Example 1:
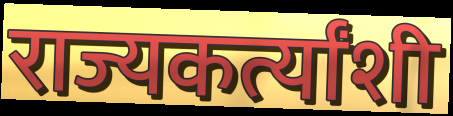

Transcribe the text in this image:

राज्यकर्त्यांशी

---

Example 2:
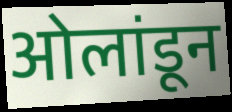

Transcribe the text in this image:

ओलांडून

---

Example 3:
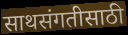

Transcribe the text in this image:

साथसंगतीसाठी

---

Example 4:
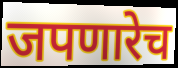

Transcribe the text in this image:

जपणारेच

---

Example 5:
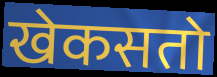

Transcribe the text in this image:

खेकसतो